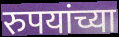
रुपयांच्या